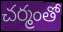
చర్మంతో